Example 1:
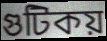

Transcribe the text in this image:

গুটিকয়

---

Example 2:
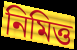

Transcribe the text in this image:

নিমিত্ত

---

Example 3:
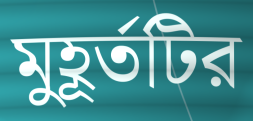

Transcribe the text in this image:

মুহূর্তটির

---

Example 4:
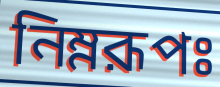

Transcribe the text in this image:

নিম্নরূপঃ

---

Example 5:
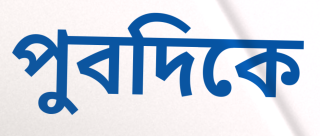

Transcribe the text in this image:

পুবদিকে